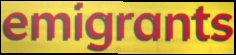
emigrants